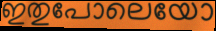
ഇതുപോലെയോ